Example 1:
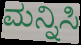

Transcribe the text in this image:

ಮನ್ನಿಸಿ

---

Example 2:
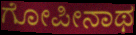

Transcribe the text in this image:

ಗೋಪೀನಾಥ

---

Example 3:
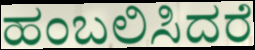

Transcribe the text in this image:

ಹಂಬಲಿಸಿದರೆ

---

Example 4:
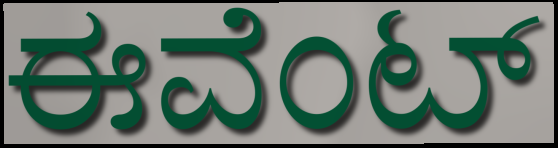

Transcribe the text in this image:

ಈವೆಂಟ್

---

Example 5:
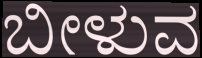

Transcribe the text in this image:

ಬೀಳುವ